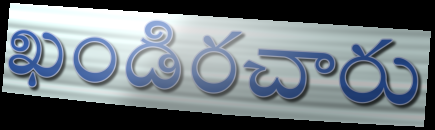
ఖండిరచారు